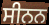
ਸੀਨਨ